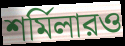
শর্মিলারও